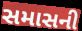
સમાસની